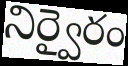
నిర్వైరం